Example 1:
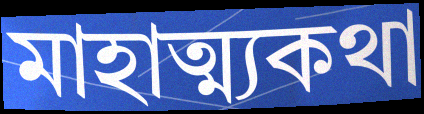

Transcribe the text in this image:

মাহাত্ম্যকথা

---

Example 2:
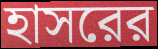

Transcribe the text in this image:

হাসরের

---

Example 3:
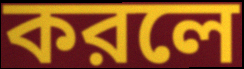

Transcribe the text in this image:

করলে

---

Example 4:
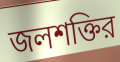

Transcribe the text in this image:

জলশক্তির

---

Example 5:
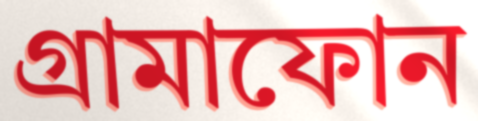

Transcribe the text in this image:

গ্রামাফোন